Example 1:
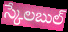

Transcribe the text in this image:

స్కేలబుల్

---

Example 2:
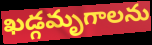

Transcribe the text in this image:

ఖడ్గమృగాలను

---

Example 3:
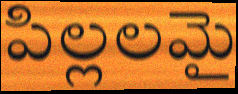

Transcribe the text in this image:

పిల్లలమై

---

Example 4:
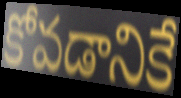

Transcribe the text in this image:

కోవడానికే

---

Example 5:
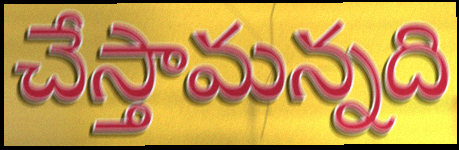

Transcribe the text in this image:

చేస్తామన్నది